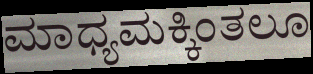
ಮಾಧ್ಯಮಕ್ಕಿಂತಲೂ